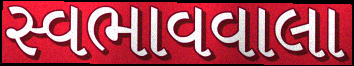
સ્વભાવવાલા